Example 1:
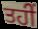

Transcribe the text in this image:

ਤਹੀਂ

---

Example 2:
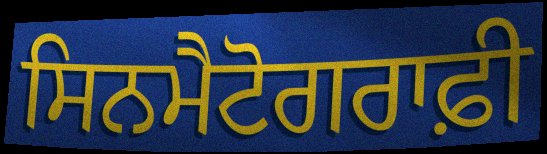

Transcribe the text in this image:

ਸਿਨਮੈਟੋਗਰਾਫ਼ੀ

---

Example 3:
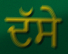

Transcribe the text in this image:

ਦੱਸੇ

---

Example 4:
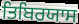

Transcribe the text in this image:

ਤਿਬਿਰਯਾਸ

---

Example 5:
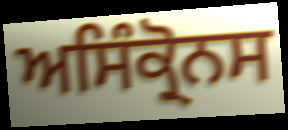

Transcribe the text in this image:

ਅਸਿੰਕ੍ਰੋਨਸ